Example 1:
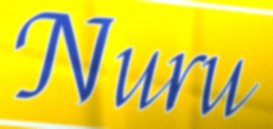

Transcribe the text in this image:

Nuru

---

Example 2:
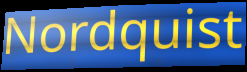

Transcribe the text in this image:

Nordquist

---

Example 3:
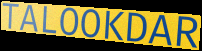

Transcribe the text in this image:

TALOOKDAR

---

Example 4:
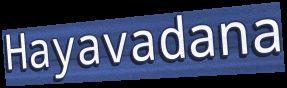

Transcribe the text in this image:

Hayavadana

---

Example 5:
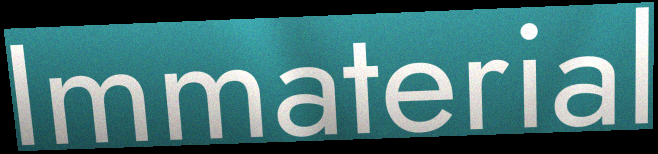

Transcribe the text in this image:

Immaterial